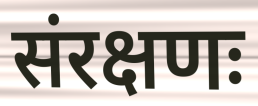
संरक्षणः